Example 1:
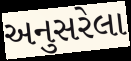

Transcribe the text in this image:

અનુસરેલા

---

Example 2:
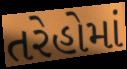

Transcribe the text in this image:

તરેહોમાં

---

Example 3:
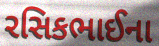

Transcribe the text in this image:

રસિકભાઈના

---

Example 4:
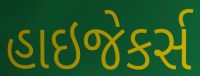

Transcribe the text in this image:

હાઇજેકર્સ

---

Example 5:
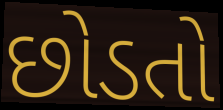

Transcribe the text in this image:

છોડતો